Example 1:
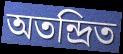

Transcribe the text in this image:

অতন্দ্রিত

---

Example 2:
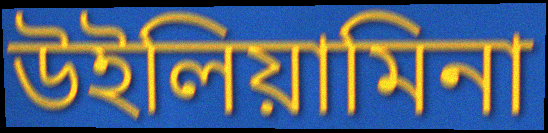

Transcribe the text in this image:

উইলিয়ামিনা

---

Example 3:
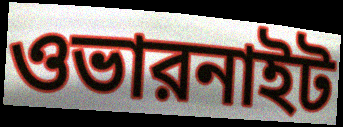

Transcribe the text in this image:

ওভারনাইট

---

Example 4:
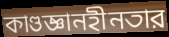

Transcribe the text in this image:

কাণ্ডজ্ঞানহীনতার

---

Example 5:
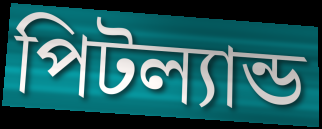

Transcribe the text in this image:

পিটল্যান্ড